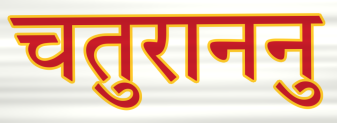
चतुराननु